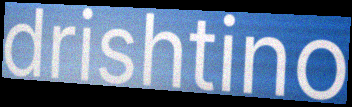
drishtino